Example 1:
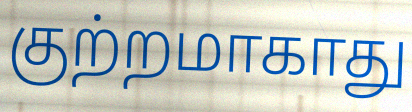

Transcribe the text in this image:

குற்றமாகாது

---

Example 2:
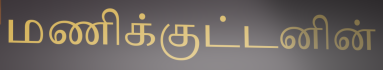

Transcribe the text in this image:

மணிக்குட்டனின்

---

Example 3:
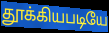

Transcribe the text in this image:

தூக்கியபடியே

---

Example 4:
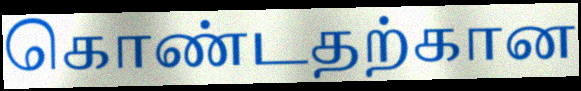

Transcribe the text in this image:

கொண்டதற்கான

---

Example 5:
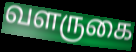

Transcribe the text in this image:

வளருகை